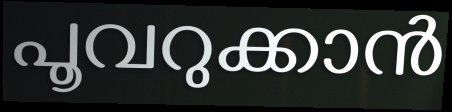
പൂവറുക്കാൻ